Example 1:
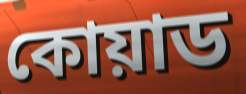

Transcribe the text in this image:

কোয়াড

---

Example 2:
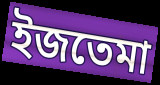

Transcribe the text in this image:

ইজতেমা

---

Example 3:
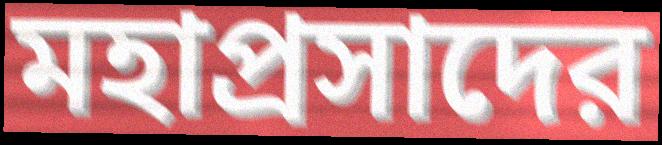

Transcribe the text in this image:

মহাপ্রসাদের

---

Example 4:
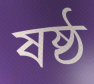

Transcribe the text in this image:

ষষ্ঠ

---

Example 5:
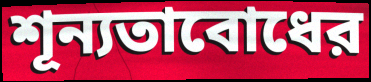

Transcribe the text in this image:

শূন্যতাবোধের